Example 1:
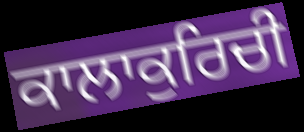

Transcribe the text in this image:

ਕਾਲਾਕੁਰਿਚੀ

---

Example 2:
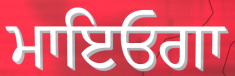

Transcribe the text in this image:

ਮਾਇਓਗਾ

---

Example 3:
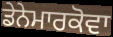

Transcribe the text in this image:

ਡੇਨੇਮਾਰਕੋਵਾ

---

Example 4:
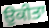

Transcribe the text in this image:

ਉਕੀਤਾ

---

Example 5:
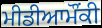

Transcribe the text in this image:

ਮੀਡੀਆਮੌਂਕੀ